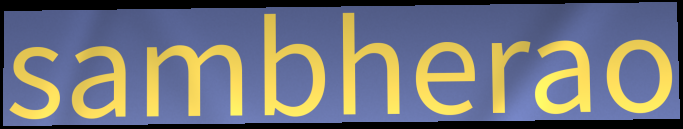
sambherao